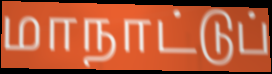
மாநாட்டுப்